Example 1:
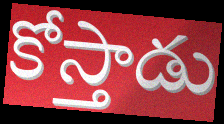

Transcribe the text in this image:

కోస్తాడు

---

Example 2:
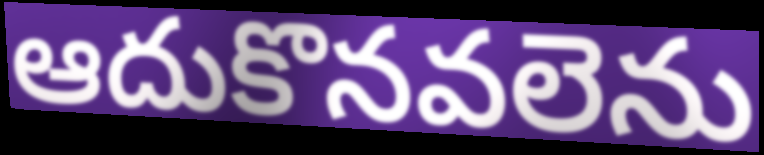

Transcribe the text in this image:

ఆదుకొనవలెను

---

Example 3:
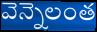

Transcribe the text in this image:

వెన్నెలంత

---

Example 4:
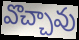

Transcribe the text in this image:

వొచ్చావు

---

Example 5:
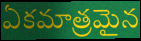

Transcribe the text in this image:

ఏకమాత్రమైన